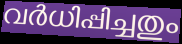
വർധിപ്പിച്ചതും